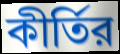
কীর্তির